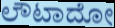
ಲೌಟಾದೋ